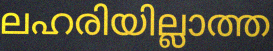
ലഹരിയില്ലാത്ത